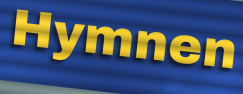
Hymnen